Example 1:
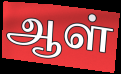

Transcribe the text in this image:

ஆள்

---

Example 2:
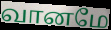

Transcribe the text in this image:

வானமே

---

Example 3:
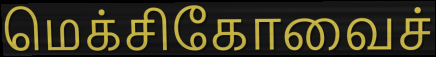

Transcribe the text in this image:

மெக்சிகோவைச்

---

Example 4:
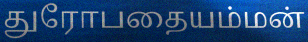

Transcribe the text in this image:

துரோபதையம்மன்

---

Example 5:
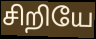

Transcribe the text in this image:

சிறியே